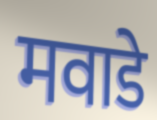
मवाडे